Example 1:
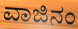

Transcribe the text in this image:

ವಾಜಿನಂ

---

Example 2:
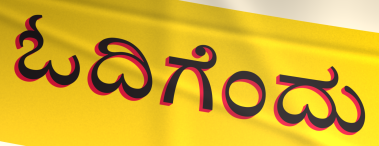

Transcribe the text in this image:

ಓದಿಗೆಂದು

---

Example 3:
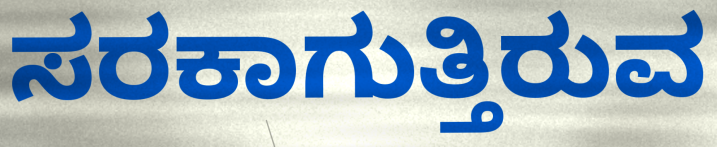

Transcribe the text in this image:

ಸರಕಾಗುತ್ತಿರುವ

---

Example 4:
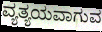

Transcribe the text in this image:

ವ್ಯತ್ಯಯವಾಗುವ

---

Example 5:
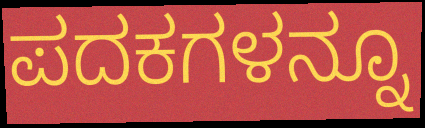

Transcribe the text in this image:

ಪದಕಗಳನ್ನೂ